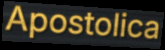
Apostolica